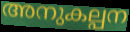
അനുകല്പന